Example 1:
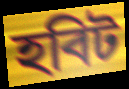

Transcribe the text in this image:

হবিট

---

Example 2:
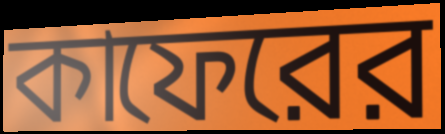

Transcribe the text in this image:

কাফেরের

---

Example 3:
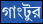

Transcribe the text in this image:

গাংটুর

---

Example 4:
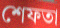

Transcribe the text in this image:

শেফতা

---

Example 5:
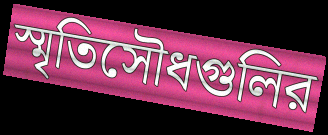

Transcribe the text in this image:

স্মৃতিসৌধগুলির